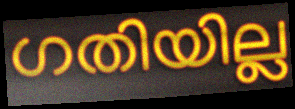
ഗതിയില്ല